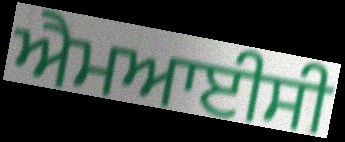
ਐਮਆਈਸੀ